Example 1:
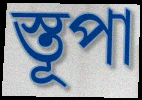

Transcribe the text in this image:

স্তূপা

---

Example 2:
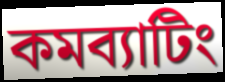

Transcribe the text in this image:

কমব্যাটিং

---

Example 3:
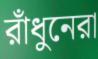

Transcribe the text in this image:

রাঁধুনেরা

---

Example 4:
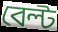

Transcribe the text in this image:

বেল্ট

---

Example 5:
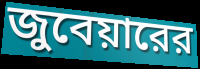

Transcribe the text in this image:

জুবেয়ারের